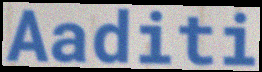
Aaditi